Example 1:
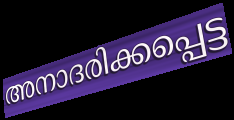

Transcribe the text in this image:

അനാദരിക്കപ്പെട്ട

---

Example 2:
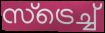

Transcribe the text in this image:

സ്ട്രെച്ച്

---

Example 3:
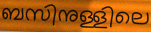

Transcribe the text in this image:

ബസിനുള്ളിലെ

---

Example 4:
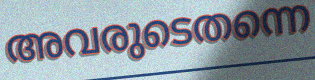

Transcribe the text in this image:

അവരുടെതന്നെ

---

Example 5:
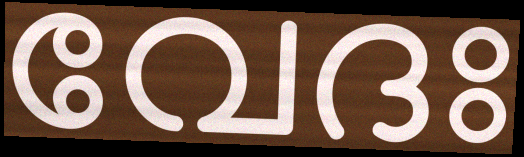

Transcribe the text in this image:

വേദഃ